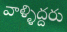
వాళ్ళిద్దరు